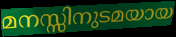
മനസ്സിനുടമയായ